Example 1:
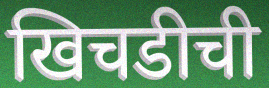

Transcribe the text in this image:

खिचडीची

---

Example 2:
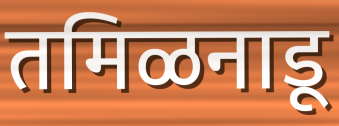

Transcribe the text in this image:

तमिळनाडू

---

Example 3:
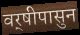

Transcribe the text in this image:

वर्षीपासुन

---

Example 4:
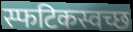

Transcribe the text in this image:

स्फटिकस्वच्छ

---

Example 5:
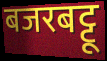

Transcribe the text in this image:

बजरबट्टू